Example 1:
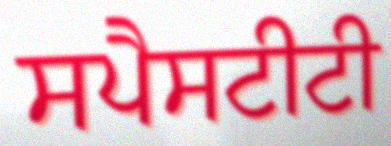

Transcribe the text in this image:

ਸਪੈਸਟੀਟੀ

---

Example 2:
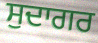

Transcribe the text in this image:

ਸੁਦਾਗਰ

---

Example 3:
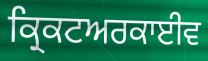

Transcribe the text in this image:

ਕ੍ਰਿਕਟਅਰਕਾਈਵ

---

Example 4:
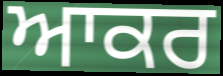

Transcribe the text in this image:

ਆਕਰ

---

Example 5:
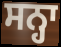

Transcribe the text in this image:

ਸਨ੍ਹਾ